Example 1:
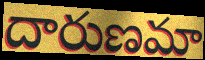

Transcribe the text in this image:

దారుణమా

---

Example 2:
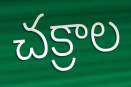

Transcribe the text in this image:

చక్రాల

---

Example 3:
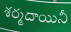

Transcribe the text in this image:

శర్మదాయినీ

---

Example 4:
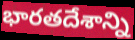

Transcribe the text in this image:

భారతదేశాన్ని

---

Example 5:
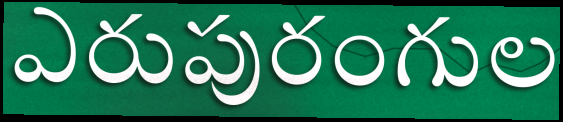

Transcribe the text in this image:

ఎరుపురంగుల